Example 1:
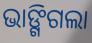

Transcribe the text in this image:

ଭାଙ୍ଗିଗଲା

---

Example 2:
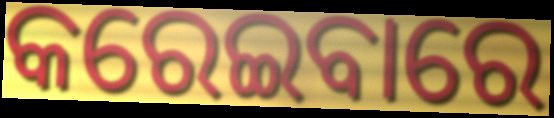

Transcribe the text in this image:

କରେଇବାରେ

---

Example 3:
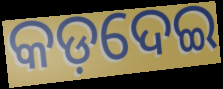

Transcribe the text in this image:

କଡ଼ଦେଇ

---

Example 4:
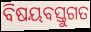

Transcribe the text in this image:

ବିଷୟବସ୍ତୁଗତ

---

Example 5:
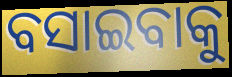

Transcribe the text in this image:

ବସାଇବାକୁ